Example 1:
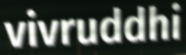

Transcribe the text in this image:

vivruddhi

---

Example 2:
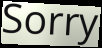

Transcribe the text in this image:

Sorry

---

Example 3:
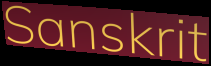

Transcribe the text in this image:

Sanskrit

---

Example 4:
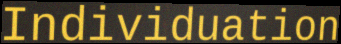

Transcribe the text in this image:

Individuation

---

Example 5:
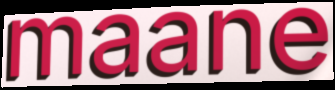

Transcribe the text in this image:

maane